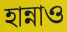
হান্নাও